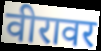
वीरावर